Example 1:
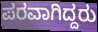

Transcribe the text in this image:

ಪರವಾಗಿದ್ದರು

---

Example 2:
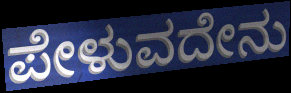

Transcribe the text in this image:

ಪೇಳುವದೇನು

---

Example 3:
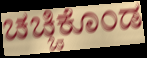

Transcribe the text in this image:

ಚಚ್ಚಿಕೊಂಡ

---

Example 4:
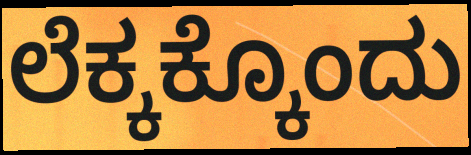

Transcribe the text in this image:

ಲೆಕ್ಕಕ್ಕೊಂದು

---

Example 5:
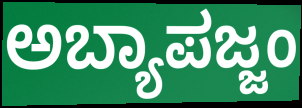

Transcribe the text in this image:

ಅಬ್ಯಾಪಜ್ಜಂ